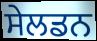
ਸੇਲਡਨ